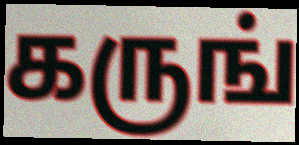
கருங்